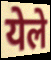
येले